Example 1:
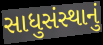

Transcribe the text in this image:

સાધુસંસ્થાનું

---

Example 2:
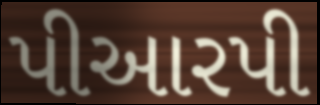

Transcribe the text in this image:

પીઆરપી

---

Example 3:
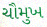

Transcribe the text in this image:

ચૌમુખ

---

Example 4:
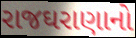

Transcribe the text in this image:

રાજઘરાણાનો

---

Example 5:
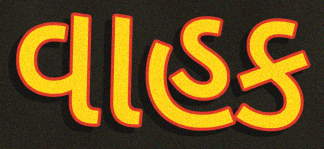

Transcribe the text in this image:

વાહક